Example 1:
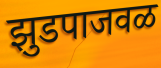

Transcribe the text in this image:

झुडपाजवळ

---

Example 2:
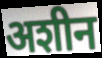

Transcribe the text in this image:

अशीन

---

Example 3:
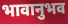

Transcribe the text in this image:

भावानुभव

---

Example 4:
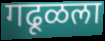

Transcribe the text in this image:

गढूळला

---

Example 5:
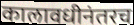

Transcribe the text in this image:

कालावधीनंतरच